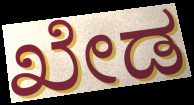
ಖೇಡ